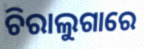
ଚିରାଲୁଗାରେ